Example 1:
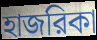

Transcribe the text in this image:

হাজরিকা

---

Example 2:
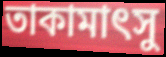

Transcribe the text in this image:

তাকামাৎসু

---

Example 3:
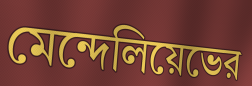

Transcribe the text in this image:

মেন্দেলিয়েভের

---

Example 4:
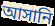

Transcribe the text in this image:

আসানি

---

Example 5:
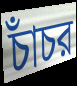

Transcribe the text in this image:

চাঁচর